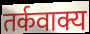
तर्कवाक्य